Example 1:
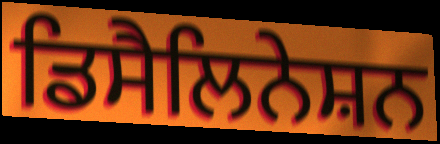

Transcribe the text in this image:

ਡਿਸੈਲਿਨੇਸ਼ਨ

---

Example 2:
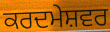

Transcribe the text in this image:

ਕਰਦਮੇਸ਼ਵਰ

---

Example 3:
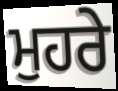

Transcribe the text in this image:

ਮੁਹਰੇ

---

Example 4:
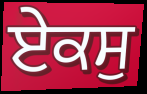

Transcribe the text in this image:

ਏਕਸੁ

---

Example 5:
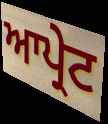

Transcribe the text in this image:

ਆਪ੍ਰੇਟ